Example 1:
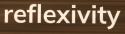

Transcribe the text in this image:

reflexivity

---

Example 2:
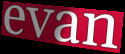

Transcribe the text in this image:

evan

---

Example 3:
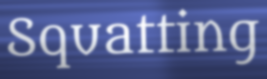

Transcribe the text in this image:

Squatting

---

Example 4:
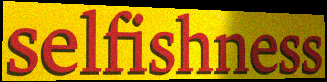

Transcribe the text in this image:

selfishness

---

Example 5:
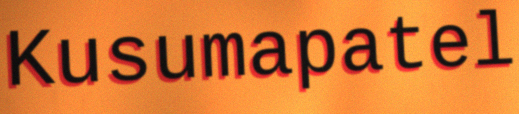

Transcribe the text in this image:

Kusumapatel